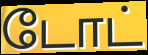
டோட்